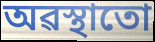
অৱস্থাতো